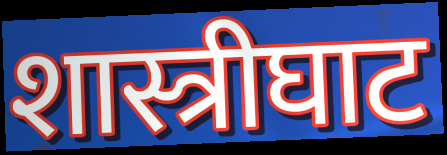
शास्त्रीघाट